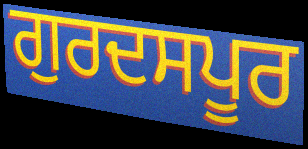
ਗੁਰਦਸਪੂਰ